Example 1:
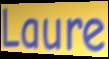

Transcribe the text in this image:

Laure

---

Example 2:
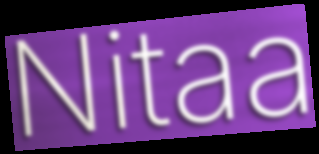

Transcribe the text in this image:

Nitaa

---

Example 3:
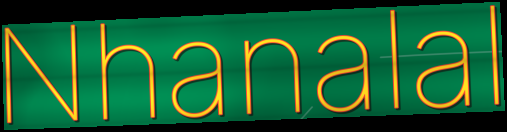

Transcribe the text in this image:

Nhanalal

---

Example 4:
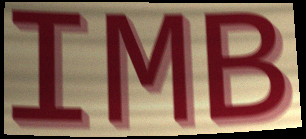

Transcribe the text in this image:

IMB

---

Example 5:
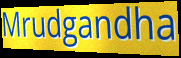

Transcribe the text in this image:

Mrudgandha